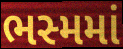
ભસ્મમાં